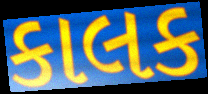
કાલક